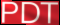
PDT